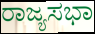
ರಾಜ್ಯಸಭಾ